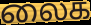
லைக